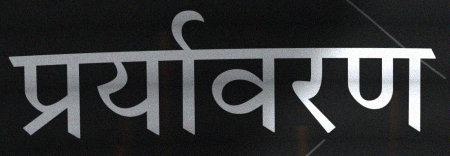
प्रर्यावरण